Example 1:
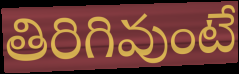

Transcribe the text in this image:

తిరిగివుంటే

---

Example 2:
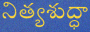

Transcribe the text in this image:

నిత్యశుద్ధా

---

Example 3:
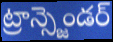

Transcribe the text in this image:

ట్రాన్స్జెండర్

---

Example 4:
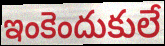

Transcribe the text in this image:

ఇంకెందుకులే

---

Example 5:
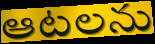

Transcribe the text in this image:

ఆటలను